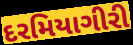
દરમિયાગીરી